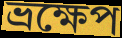
ভ্রক্ষেপ